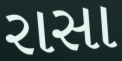
રાસા